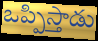
ఒప్పిస్తాడు